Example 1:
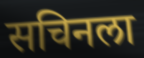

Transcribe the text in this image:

सचिनला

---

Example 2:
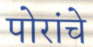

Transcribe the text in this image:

पोरांचे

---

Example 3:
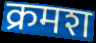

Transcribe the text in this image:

क्रमश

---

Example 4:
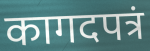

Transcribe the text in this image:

कागदपत्रं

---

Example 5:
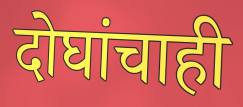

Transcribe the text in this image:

दोघांचाही